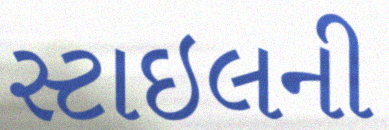
સ્ટાઇલની